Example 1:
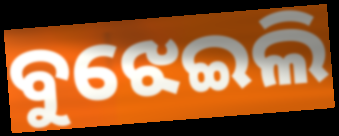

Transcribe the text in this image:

ବୁଝେଇଲି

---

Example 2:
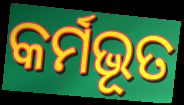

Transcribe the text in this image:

କର୍ମଭୂତ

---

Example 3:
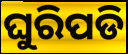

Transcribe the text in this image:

ଘୁରିପଡି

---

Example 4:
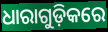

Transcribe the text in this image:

ଧାରାଗୁଡ଼ିକରେ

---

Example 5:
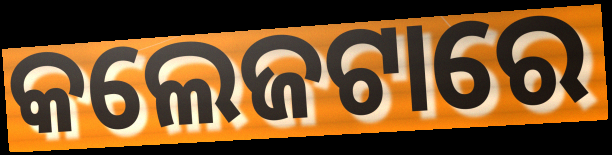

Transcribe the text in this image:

କଲେଜଟାରେ